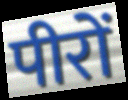
पीरों